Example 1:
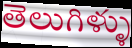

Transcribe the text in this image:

తెలుగిళ్ళు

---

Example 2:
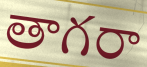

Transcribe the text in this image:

తాగరా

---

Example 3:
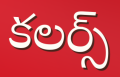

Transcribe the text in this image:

కలర్స్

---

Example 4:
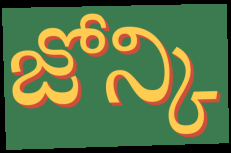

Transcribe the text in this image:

జోన్కి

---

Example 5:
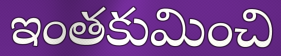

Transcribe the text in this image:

ఇంతకుమించి